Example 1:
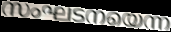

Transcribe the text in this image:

സംഘടനയെന്ന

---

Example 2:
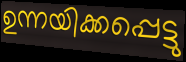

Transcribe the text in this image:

ഉന്നയിക്കപ്പെട്ടു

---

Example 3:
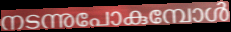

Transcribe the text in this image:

നടന്നുപോകുമ്പോൾ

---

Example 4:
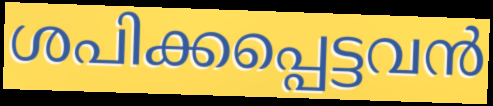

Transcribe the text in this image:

ശപിക്കപ്പെട്ടവൻ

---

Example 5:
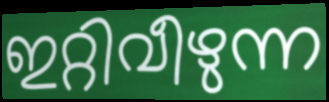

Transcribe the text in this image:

ഇറ്റിവീഴുന്ന